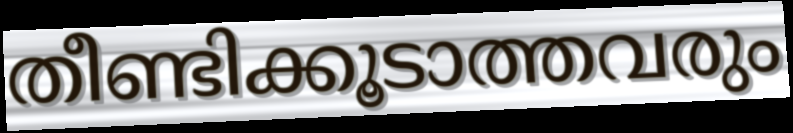
തീണ്ടിക്കൂടാത്തവരും